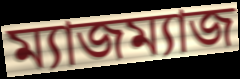
ম্যাজম্যাজ